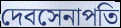
দেবসেনাপতি